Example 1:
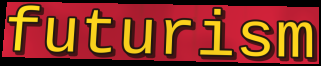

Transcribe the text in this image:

futurism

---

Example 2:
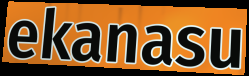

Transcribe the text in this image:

ekanasu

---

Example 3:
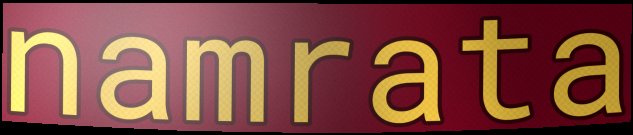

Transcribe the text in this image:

namrata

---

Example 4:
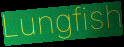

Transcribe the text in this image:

Lungfish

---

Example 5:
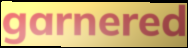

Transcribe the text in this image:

garnered